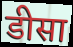
डीसा